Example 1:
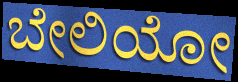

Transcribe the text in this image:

ಬೇಲಿಯೋ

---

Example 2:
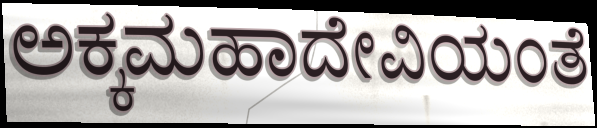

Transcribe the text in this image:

ಅಕ್ಕಮಹಾದೇವಿಯಂತೆ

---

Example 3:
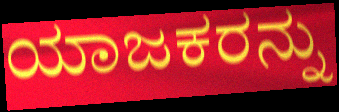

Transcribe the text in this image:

ಯಾಜಕರನ್ನು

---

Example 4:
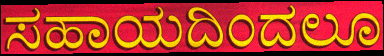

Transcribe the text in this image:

ಸಹಾಯದಿಂದಲೂ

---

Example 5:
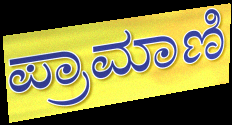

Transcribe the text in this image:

ಪ್ರಾಮಾಣಿ